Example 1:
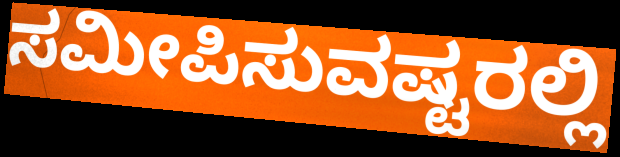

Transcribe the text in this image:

ಸಮೀಪಿಸುವಷ್ಟರಲ್ಲಿ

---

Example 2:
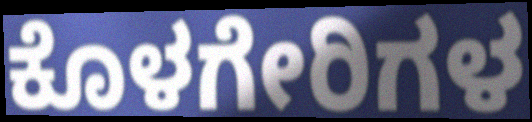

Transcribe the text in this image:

ಕೊಳಗೇರಿಗಳ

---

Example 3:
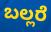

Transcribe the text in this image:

ಬಲ್ಲರೆ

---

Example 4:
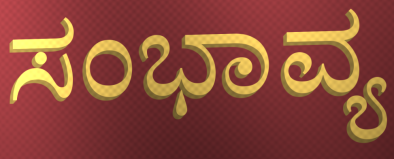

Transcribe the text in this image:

ಸಂಭಾವ್ಯ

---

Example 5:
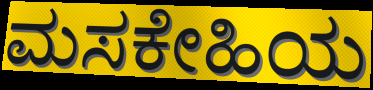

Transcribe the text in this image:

ಮಸಕೇಹಿಯ